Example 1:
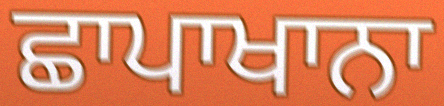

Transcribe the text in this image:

ਛਾਪਾਖਾਨਾ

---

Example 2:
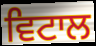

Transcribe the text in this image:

ਵਿਟਾਲ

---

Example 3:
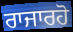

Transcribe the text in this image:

ਰਾਜਾਰਹੋ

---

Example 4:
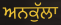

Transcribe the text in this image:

ਅਨਕੁੱਲਾ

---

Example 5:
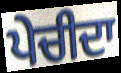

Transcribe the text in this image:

ਪੇਚੀਦਾ